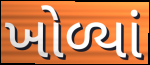
ખોળ્યાં